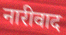
नारीवाद